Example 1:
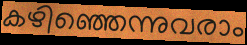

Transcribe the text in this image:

കഴിഞ്ഞെന്നുവരാം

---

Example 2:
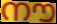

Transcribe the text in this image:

നൗ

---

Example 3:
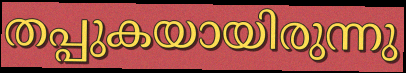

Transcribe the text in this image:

തപ്പുകയായിരുന്നു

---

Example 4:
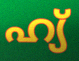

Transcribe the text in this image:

ഹ്യ്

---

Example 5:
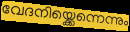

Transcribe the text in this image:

വേദനിയ്ക്കെന്നെന്നും